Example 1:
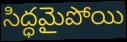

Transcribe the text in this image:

సిద్ధమైపోయి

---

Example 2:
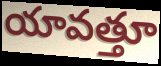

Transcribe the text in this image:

యావత్తూ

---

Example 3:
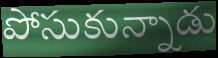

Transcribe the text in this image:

పోసుకున్నాడు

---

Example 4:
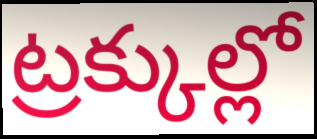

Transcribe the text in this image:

ట్రక్కుల్లో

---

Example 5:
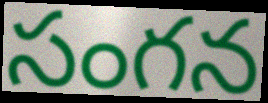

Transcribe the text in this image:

సంగన